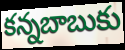
కన్నబాబుకు